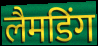
लैमडिंग